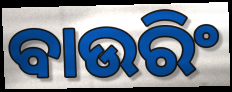
ବାଉରିଂ